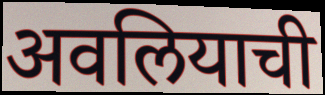
अवलियाची